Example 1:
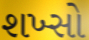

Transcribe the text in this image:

શખ્સો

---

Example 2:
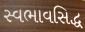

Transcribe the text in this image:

સ્વભાવસિદ્ધ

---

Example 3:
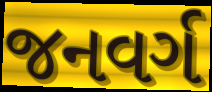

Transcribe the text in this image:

જનવર્ગ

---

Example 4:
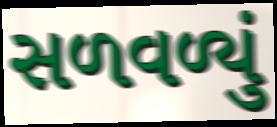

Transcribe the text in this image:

સળવળ્યું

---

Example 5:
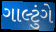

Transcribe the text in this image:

ગાલ્ટુંગે